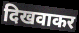
दिखवाकर